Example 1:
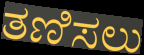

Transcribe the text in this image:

ತಣಿಸಲು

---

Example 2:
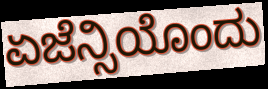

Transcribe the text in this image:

ಏಜೆನ್ಸಿಯೊಂದು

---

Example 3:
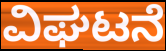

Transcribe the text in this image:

ವಿಘಟನೆ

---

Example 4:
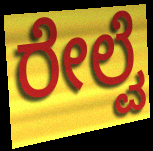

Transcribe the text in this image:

ರೇಲ್ವೆ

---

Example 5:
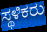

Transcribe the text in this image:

ಸ್ಥಳಿಕರು